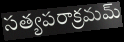
సత్యపరాక్రమమ్